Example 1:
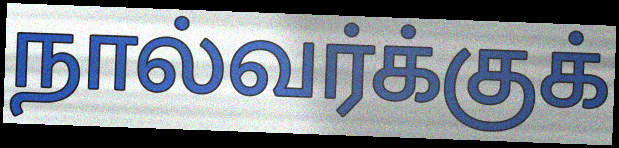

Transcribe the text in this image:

நால்வர்க்குக்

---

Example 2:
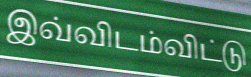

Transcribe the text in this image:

இவ்விடம்விட்டு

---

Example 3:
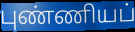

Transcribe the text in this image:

புண்ணியப்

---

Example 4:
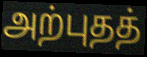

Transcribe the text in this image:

அற்புதத்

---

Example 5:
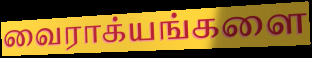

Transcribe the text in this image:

வைராக்யங்களை